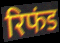
रिफंड